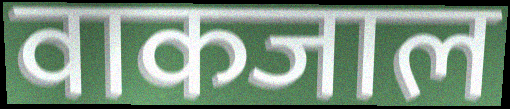
वाकजाल